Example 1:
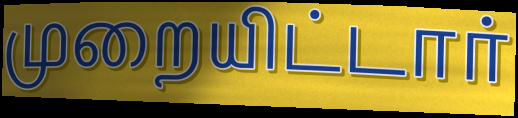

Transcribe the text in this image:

முறையிட்டார்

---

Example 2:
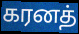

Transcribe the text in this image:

கரனத்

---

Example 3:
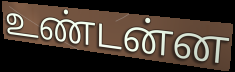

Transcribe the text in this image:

உண்டன்ன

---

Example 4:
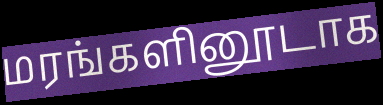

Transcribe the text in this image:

மரங்களினூடாக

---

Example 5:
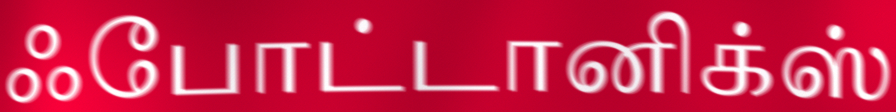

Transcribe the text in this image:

ஃபோட்டானிக்ஸ்